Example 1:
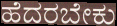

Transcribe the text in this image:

ಹೆದರಬೇಕು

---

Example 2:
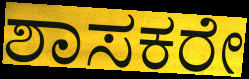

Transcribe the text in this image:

ಶಾಸಕರೇ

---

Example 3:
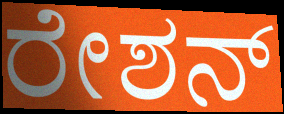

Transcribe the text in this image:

ರೇಶನ್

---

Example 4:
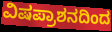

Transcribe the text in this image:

ವಿಷಪ್ರಾಶನದಿಂದ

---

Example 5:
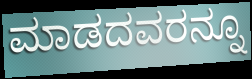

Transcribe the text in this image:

ಮಾಡದವರನ್ನೂ